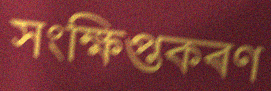
সংক্ষিপ্তকৰণ